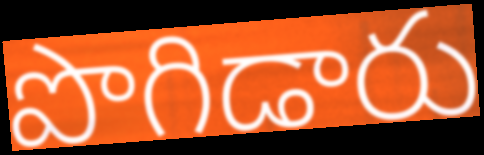
పొగిడారు